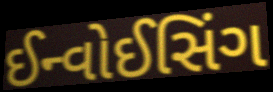
ઈન્વોઈસિંગ